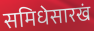
समिधेसारखं